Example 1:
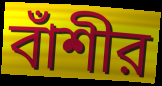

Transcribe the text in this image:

বাঁশীর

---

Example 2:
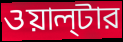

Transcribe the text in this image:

ওয়াল্‌টার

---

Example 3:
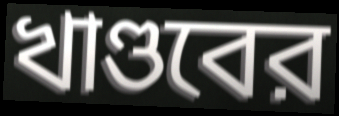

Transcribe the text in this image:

খাণ্ডবের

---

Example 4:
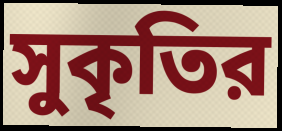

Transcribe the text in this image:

সুকৃতির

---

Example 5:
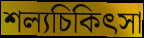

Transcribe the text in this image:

শল্যচিকিৎসা